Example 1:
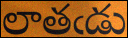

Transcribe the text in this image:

లాతఁడు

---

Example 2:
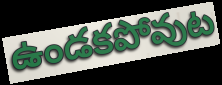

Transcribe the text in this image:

ఉండకపోవుట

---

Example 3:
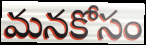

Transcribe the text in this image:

మనకోసం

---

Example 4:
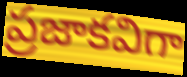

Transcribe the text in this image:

ప్రజాకవిగా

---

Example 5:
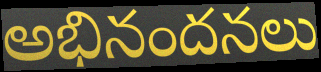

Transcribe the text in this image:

అభినందనలు